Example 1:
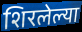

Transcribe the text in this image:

शिरलेल्या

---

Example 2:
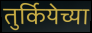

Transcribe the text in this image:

तुर्कियेच्या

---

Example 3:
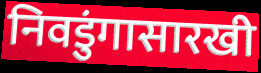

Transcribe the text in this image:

निवडुंगासारखी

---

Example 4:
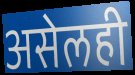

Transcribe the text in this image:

असेलही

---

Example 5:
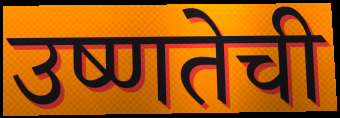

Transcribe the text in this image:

उष्णतेची